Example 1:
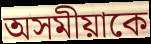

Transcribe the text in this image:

অসমীয়াকে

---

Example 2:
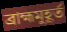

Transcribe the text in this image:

ব্রাহ্মমুহূর্ত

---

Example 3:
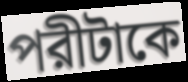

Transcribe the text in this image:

পরীটাকে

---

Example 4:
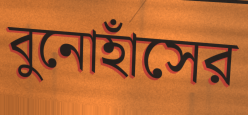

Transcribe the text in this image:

বুনোহাঁসের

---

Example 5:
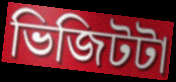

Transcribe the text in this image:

ভিজিটটা